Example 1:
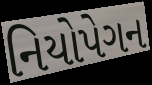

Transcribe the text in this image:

નિયોપેગન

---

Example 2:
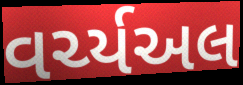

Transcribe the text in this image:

વર્ચ્યઅલ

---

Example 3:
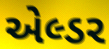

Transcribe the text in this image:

એલ્ડર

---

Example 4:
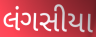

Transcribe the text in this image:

લંગસીયા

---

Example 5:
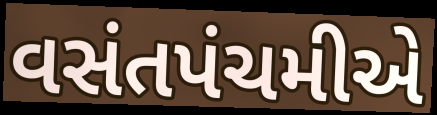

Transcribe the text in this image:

વસંતપંચમીએ